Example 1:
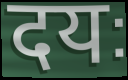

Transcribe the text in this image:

दयः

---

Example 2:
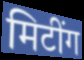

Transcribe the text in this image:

मिटींग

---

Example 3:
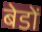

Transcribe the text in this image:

बेडों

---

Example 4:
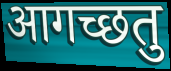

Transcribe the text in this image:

आगच्छतु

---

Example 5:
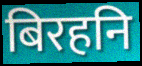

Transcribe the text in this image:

बिरहनि